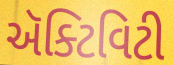
ઍક્ટિવિટી